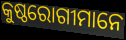
କୁଷ୍ଠରୋଗୀମାନେ